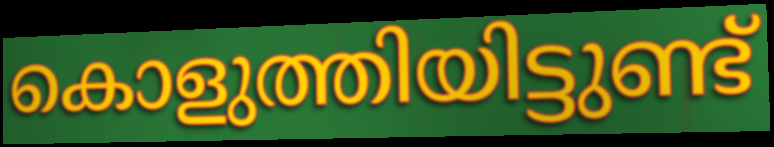
കൊളുത്തിയിട്ടുണ്ട്